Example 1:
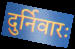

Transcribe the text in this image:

दुर्निवारः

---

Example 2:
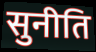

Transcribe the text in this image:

सुनीति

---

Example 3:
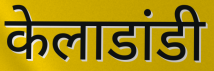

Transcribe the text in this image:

केलाडांडी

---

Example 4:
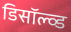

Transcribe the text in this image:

डिसॉल्व्ड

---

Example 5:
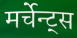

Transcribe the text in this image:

मर्चेन्ट्स